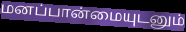
மனப்பான்மையுடனும்